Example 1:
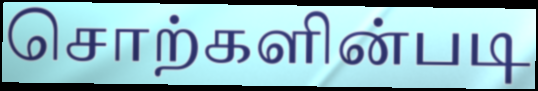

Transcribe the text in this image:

சொற்களின்படி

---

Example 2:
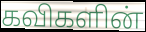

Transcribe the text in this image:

கவிகளின்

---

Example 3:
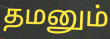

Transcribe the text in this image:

தமனும்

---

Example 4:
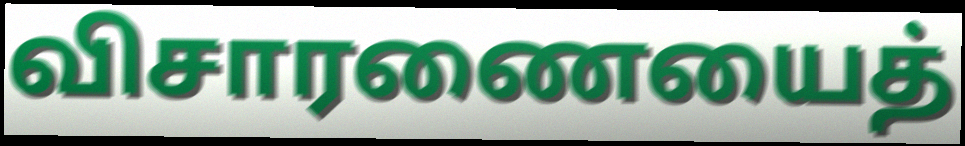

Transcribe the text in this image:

விசாரணையைத்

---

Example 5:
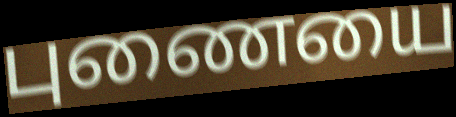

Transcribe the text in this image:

புணையை